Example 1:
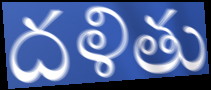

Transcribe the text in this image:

దళితు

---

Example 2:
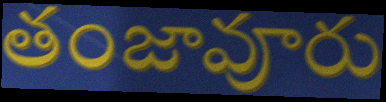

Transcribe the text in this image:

తంజావూరు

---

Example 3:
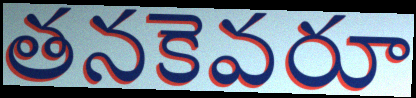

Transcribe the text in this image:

తనకెవరూ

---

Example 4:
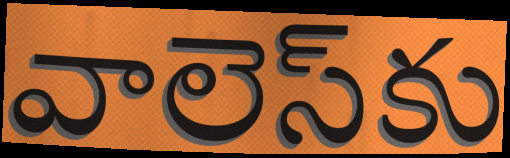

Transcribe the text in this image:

వాలెస్‌కు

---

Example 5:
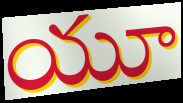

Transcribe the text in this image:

యూ